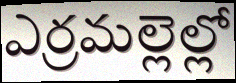
ఎర్రమల్లెల్లో